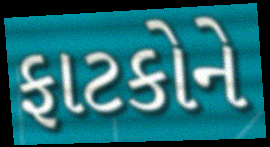
ફાટકોને